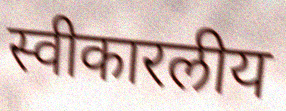
स्वीकारलीय